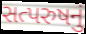
સત્પરુષનું